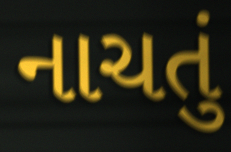
નાચતું